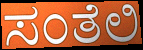
ಸಂತೆಲಿ